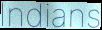
Indians